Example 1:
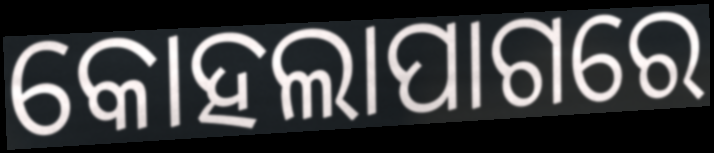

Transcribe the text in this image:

କୋହଲାପାଗରେ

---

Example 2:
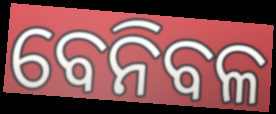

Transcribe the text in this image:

ବେନିବଳ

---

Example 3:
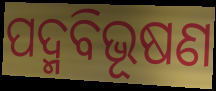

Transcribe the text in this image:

ପଦ୍ମବିଭୂଷଣ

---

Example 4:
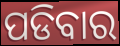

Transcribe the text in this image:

ପଡିବାର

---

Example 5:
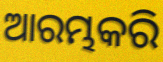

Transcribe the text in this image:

ଆରମ୍ଭକରି